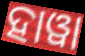
ହାୱା